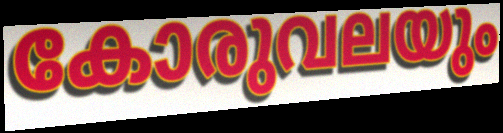
കോരുവലയും